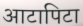
आटापिटा